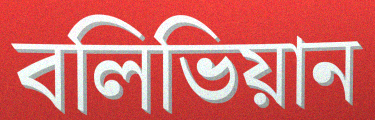
বলিভিয়ান